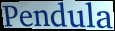
Pendula